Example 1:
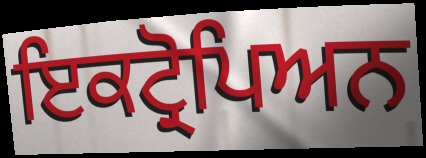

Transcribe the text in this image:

ਇਕਟ੍ਰੋਪਿਅਨ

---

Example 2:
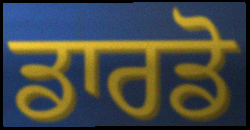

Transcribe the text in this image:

ਡਾਰਡੋ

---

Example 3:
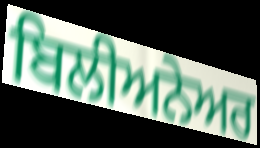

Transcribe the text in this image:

ਬਿਲੀਅਨੇਅਰ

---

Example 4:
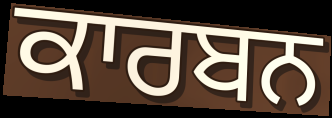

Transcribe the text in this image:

ਕਾਰਬਨ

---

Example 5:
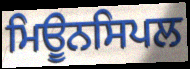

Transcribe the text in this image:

ਮਿਊਨਸਿਪਲ